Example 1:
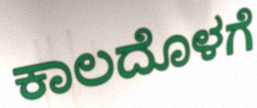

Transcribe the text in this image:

ಕಾಲದೊಳಗೆ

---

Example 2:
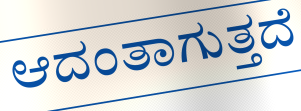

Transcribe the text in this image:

ಆದಂತಾಗುತ್ತದೆ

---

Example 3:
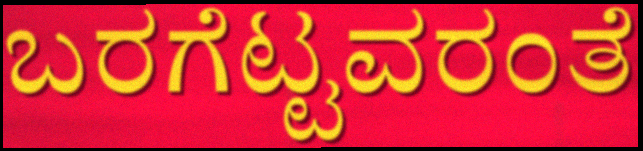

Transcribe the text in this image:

ಬರಗೆಟ್ಟವರಂತೆ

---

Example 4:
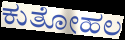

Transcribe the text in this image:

ಕುತೋಹಲ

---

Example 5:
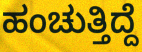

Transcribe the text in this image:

ಹಂಚುತ್ತಿದ್ದೆ